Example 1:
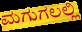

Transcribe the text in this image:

ಮಗುಗಲಲ್ಲಿ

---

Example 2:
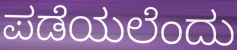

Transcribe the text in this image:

ಪಡೆಯಲೆಂದು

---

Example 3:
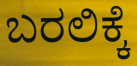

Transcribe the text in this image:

ಬರಲಿಕ್ಕೆ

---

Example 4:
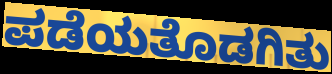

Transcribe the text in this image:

ಪಡೆಯತೊಡಗಿತು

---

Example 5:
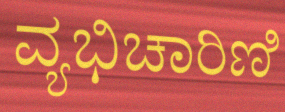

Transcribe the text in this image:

ವ್ಯಭಿಚಾರಿಣಿ